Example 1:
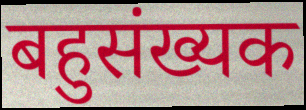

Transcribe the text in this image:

बहुसंख्यक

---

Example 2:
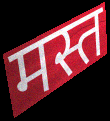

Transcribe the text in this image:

मस्‍त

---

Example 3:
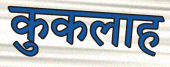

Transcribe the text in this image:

कुकलाह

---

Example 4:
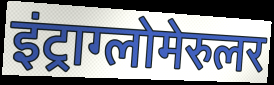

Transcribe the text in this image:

इंट्राग्लोमेरुलर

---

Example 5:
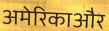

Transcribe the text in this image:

अमेरिकाऔर